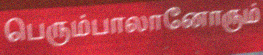
பெரும்பாலானோரும்